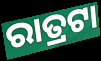
ରାତ୍ରଟା